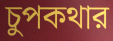
চুপকথার